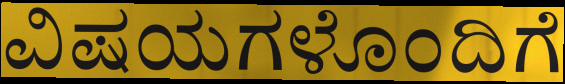
ವಿಷಯಗಳೊಂದಿಗೆ